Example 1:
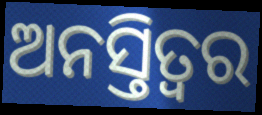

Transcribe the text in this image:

ଅନସ୍ତିତ୍ୱର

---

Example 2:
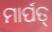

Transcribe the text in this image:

ମାର୍ପତ୍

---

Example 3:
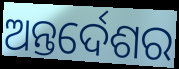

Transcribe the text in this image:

ଅନ୍ତର୍ଦେଶର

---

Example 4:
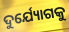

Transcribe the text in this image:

ଦୁର୍ଯ୍ୟୋଗକୁ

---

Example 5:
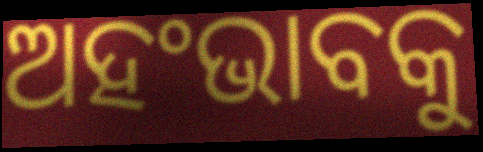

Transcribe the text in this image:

ଅହଂଭାବକୁ